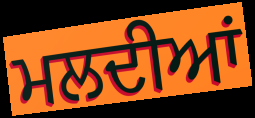
ਮਲਦੀਆਂ